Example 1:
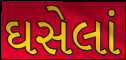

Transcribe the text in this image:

ઘસેલાં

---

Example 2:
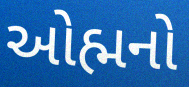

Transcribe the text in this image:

ઓહ્મનો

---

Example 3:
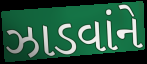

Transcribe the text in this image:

ઝાડવાંને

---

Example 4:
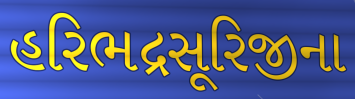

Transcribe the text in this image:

હરિભદ્રસૂરિજીના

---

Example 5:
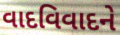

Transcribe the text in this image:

વાદવિવાદને